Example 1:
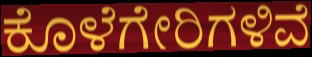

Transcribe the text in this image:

ಕೊಳೆಗೇರಿಗಳಿವೆ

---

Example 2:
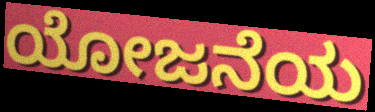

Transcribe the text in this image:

ಯೋಜನೆಯ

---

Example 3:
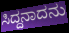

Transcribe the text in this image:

ಸಿದ್ದನಾದನು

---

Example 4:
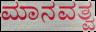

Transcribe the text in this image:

ಮಾನವತ್ವ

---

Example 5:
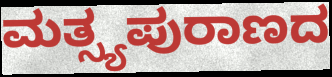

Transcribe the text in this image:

ಮತ್ಸ್ಯಪುರಾಣದ